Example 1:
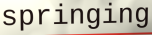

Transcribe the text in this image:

springing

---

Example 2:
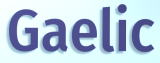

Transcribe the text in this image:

Gaelic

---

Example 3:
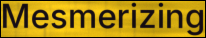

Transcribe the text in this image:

Mesmerizing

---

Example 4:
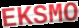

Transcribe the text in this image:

EKSMO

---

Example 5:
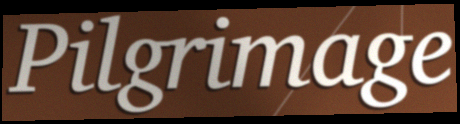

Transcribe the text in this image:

Pilgrimage